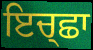
ਇਚ੍ਛਾ